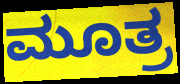
ಮೂತ್ರ